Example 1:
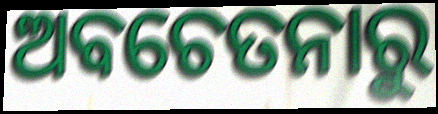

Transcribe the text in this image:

ଅବଚେତନାରୁ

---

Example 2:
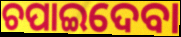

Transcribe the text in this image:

ଚପାଇଦେବା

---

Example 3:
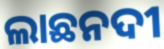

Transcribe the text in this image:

ଲାଛନଦୀ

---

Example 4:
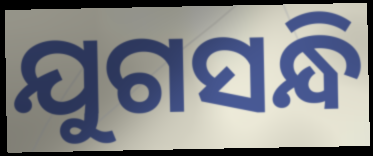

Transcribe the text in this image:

ଯୁଗସନ୍ଧି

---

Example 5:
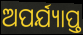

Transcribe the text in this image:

ଅପର୍ଯ୍ୟାପ୍ତ